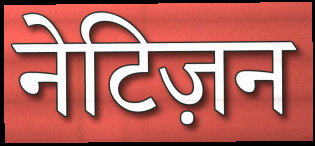
नेटिज़न